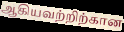
ஆகியவற்றிற்கான